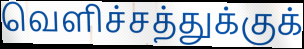
வெளிச்சத்துக்குக்